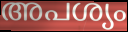
അപശ്യം